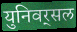
युनिवर्सल